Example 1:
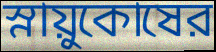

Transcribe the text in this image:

স্নায়ুকোষের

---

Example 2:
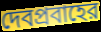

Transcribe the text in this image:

দেবপ্রবাহের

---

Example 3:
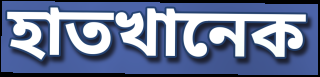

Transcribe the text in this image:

হাতখানেক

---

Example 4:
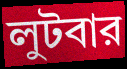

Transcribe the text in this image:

লুটবার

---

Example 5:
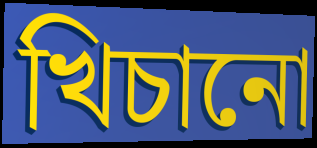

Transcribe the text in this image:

খিচানো